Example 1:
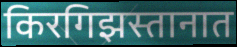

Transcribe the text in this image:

किरगिझस्तानात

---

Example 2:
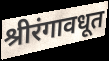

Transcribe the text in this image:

श्रीरंगावधूत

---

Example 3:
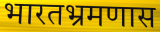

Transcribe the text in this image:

भारतभ्रमणास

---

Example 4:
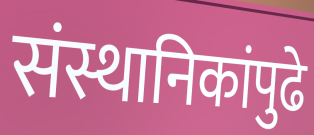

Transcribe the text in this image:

संस्थानिकांपुढे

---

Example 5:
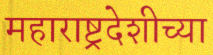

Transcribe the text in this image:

महाराष्ट्रदेशीच्या